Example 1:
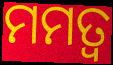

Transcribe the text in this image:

ମମତ୍ୱ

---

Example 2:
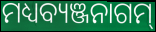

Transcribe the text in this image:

ମଧ୍ୟବ୍ୟଞ୍ଜନାଗମ୍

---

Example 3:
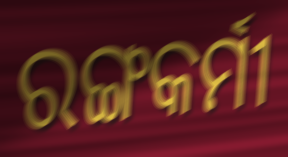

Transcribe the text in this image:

ରଙ୍ଗକର୍ମୀ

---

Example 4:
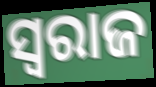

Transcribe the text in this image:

ସ୍ଵରାଜ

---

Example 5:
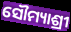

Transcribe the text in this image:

ସୌମ୍ୟାଶ୍ରୀ